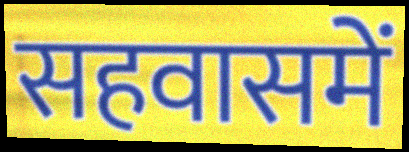
सहवासमें